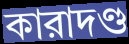
কারাদণ্ড